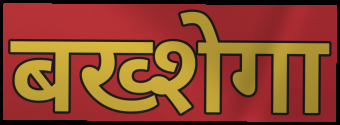
बख्शेगा